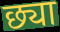
छ्या